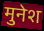
मुनेश